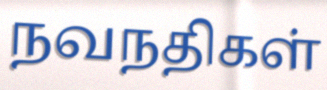
நவநதிகள்